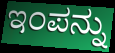
ಇಂಪನ್ನು